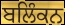
ਬਲਿੰਕਨ